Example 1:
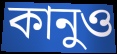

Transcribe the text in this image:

কানুও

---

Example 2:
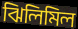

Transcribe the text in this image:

ঝিলিমিল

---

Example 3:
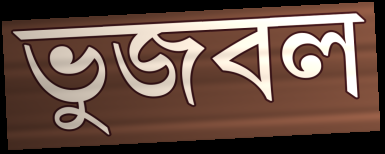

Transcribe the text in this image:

ভুজবল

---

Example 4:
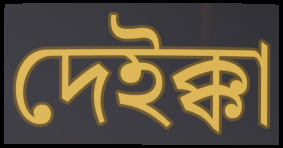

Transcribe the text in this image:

দেইক্কা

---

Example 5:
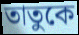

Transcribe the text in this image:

তাতুকে